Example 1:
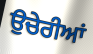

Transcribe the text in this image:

ਉਚੇਰੀਆਂ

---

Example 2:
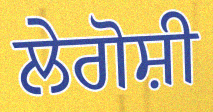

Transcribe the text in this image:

ਲੇਗੋਸ਼ੀ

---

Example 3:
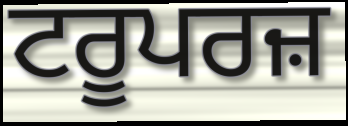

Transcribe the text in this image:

ਟਰੂਪਰਜ਼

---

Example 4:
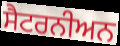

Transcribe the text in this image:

ਸੈਟਰਨੀਅਨ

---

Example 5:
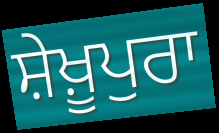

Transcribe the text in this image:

ਸ਼ੇਖ਼ੂਪੁਰਾ